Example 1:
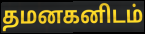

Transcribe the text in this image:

தமனகனிடம்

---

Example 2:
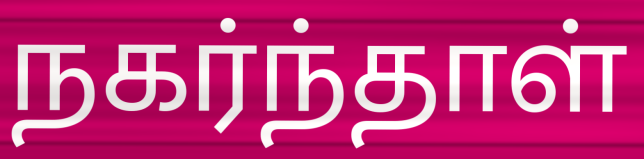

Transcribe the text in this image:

நகர்ந்தாள்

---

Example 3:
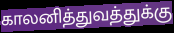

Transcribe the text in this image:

காலனித்துவத்துக்கு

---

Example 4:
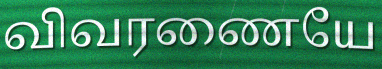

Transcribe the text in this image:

விவரணையே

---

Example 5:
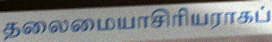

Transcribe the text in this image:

தலைமையாசிரியராகப்